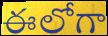
ఈలోగా